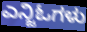
ಎನ್ಜಿಓಗಳು